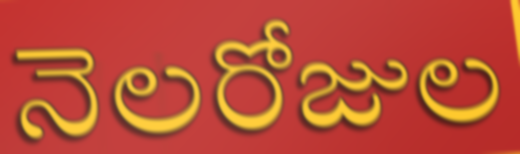
నెలరోజుల